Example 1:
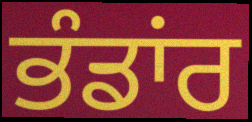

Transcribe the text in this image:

ਭੰਡਾਂਰ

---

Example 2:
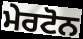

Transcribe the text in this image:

ਮੇਰਟੋਨ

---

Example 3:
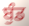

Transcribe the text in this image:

ਬੁੰਡ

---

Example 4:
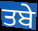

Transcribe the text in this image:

ਤਬੇ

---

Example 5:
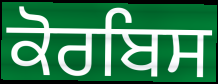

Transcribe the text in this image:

ਕੋਰਬਿਸ